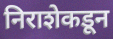
निराशेकडून